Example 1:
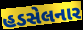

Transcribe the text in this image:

હડસેલનાર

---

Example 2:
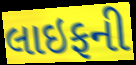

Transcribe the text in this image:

લાઇફની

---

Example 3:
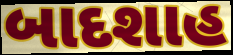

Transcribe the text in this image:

બાદશાહ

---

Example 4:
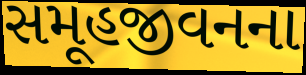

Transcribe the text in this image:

સમૂહજીવનના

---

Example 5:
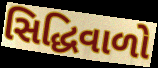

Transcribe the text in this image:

સિદ્ધિવાળો